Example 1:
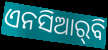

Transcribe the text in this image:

ଏନସିଆର୍‌ବି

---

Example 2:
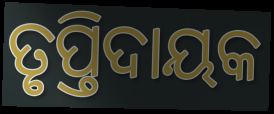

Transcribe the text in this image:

ତୃପ୍ତିଦାୟକ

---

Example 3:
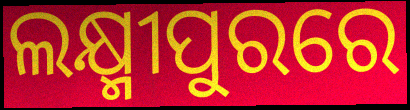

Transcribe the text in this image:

ଲକ୍ଷ୍ମୀପୁରରେ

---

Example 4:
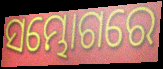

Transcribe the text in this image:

ସମ୍ଭୋଗରେ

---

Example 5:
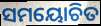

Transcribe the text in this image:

ସମୟୋଚିତ